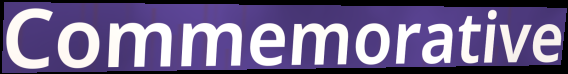
Commemorative